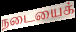
நடையைக்